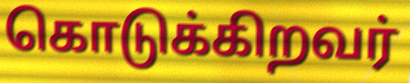
கொடுக்கிறவர்